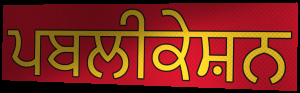
ਪਬਲੀਕੇਸ਼ਨ